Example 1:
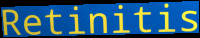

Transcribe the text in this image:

Retinitis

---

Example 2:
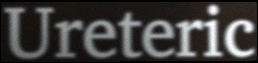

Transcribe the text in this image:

Ureteric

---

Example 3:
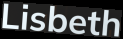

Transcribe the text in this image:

Lisbeth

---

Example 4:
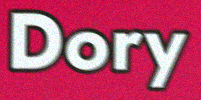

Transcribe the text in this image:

Dory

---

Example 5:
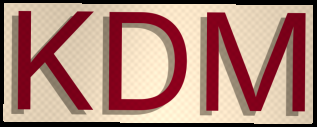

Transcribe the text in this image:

KDM